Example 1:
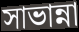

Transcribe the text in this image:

সাভান্না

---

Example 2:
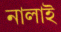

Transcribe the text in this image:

নালাই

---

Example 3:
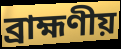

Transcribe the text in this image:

ব্রাহ্মণীয়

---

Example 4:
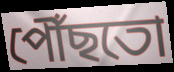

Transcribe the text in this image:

পৌঁছতো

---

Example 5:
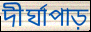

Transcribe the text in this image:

দীর্ঘাপাড়